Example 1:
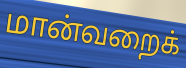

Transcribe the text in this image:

மான்வறைக்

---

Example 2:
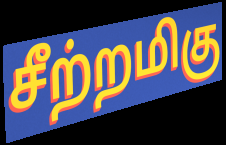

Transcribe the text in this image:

சீற்றமிகு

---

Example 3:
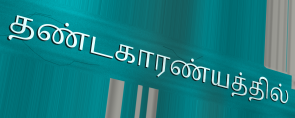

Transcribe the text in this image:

தண்டகாரண்யத்தில்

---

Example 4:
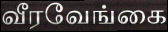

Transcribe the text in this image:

வீரவேங்கை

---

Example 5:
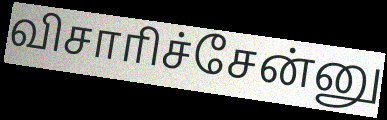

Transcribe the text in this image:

விசாரிச்சேன்னு